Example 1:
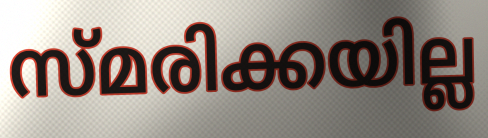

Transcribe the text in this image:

സ്മരിക്കയില്ല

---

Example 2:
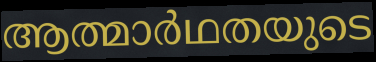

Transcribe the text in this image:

ആത്മാർഥതയുടെ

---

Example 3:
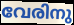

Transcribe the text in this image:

വേരിനു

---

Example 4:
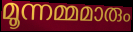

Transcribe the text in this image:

മൂന്നമ്മമാരും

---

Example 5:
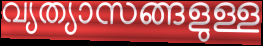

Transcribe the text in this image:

വ്യത്യാസങ്ങളുള്ള